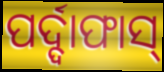
ପର୍ଦ୍ଦାଫାସ୍